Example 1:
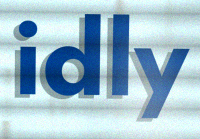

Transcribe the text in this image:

idly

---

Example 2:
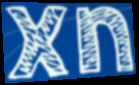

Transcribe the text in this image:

xn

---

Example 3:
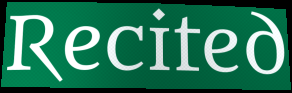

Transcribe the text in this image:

Recited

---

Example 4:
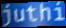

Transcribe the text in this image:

juthi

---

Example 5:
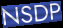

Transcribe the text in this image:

NSDP